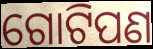
ଗୋଟିପଣ